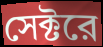
সেক্টরে